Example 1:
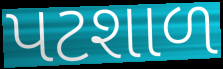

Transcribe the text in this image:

પટશાળ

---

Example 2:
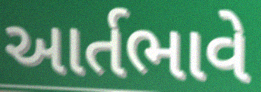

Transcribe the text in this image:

આર્તભાવે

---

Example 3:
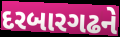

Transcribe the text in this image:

દરબારગઢને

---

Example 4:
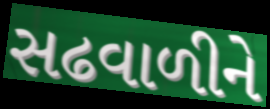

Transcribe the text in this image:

સઢવાળીને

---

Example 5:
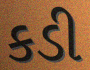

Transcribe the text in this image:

કડી